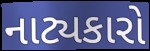
નાટ્યકારો